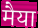
मैया